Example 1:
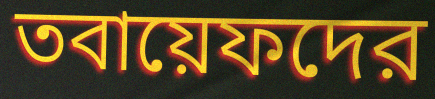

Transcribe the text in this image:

তবায়েফদের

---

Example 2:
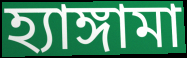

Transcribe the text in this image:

হ্যাঙ্গামা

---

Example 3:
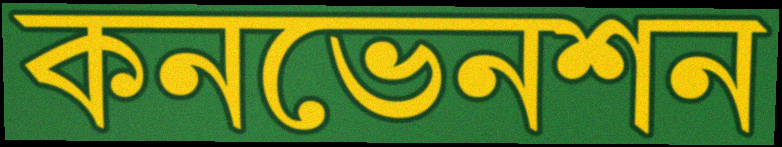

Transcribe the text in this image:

কনভেনশন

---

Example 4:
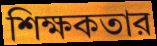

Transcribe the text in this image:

শিক্ষকতার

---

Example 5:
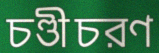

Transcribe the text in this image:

চণ্ডীচরণ